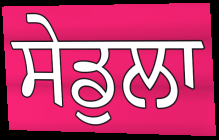
ਸੇਡੁਲਾ